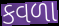
કવળા